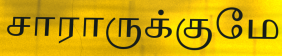
சாராருக்குமே